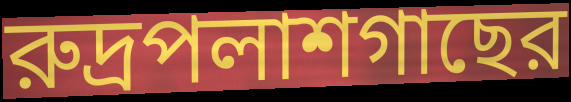
রুদ্রপলাশগাছের